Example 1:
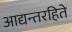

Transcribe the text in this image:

आद्यन्तरहिते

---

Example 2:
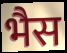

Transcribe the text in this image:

भैस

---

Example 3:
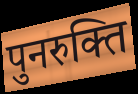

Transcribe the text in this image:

पुनरुक्ति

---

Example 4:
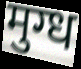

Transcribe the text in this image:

मुग्ध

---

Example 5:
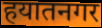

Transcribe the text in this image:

हयातनगर